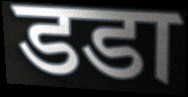
डडा